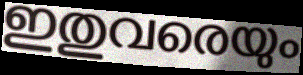
ഇതുവരെയും